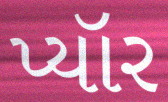
પ્યૉર